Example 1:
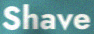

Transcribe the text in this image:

Shave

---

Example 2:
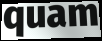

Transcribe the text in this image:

quam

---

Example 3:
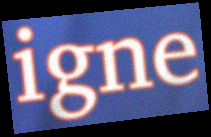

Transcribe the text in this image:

igne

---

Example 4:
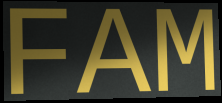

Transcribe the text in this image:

FAM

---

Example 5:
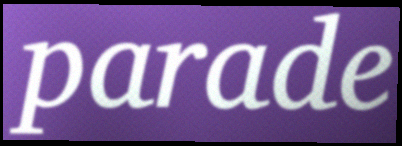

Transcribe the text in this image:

parade